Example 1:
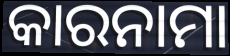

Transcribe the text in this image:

କାରନାମା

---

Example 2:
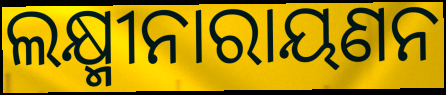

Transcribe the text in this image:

ଲକ୍ଷ୍ମୀନାରାୟଣନ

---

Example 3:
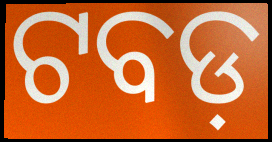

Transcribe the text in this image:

ଟବଡ଼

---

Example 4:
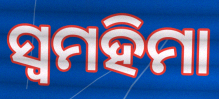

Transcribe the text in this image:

ସ୍ୱମହିମା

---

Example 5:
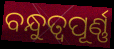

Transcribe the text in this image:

ବନ୍ଧୁତ୍ଵପୂର୍ଣ୍ଣ